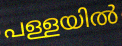
പള്ളയിൽ